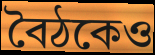
বৈঠকেও